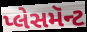
પ્લેસમૅન્ટ